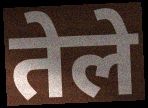
तेले